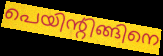
പെയിന്റിങ്ങിനെ